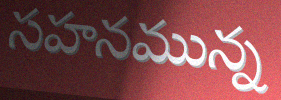
సహనమున్న